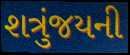
શત્રુંજયની